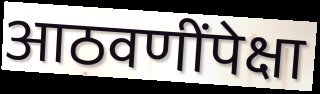
आठवणींपेक्षा